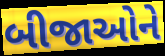
બીજાઓને